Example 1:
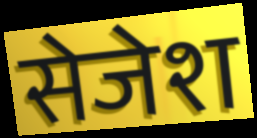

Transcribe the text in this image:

सेजेश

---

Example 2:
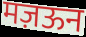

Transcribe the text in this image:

मज़ऊन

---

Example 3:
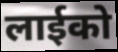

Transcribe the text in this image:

लाईको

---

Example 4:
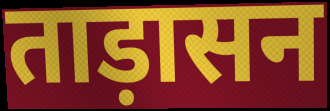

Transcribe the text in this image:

ताड़ासन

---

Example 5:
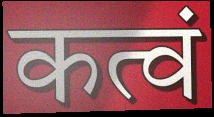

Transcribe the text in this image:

कत्वं